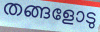
തങ്ങളോടു